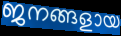
ജനങ്ങളായ